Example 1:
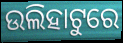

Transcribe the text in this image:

ଉଲିହାଟୁରେ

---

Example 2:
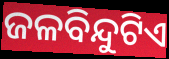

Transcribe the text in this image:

ଜଳବିନ୍ଦୁଟିଏ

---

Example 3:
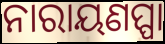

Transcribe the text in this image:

ନାରାୟଣପ୍ପା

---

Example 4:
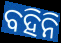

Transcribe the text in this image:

ବହିନି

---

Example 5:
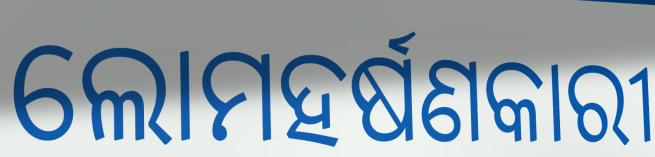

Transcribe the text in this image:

ଲୋମହର୍ଷଣକାରୀ